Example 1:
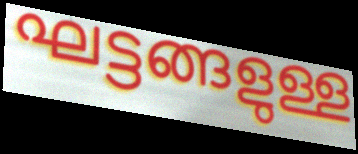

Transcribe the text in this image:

ഘട്ടങ്ങളുള്ള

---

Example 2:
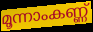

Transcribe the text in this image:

മൂന്നാംകണ്ണ്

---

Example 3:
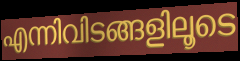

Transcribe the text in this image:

എന്നിവിടങ്ങളിലൂടെ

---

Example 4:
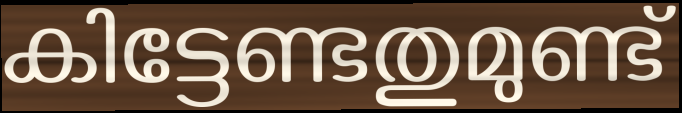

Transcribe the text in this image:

കിട്ടേണ്ടതുമുണ്ട്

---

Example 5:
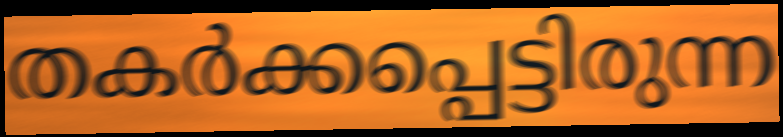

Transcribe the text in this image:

തകർക്കപ്പെട്ടിരുന്ന